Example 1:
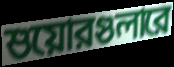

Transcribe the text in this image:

শুয়োরগুলারে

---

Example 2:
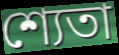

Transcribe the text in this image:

শ্যেতা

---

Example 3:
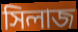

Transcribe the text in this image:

সিলাজ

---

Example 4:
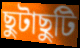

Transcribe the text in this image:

ছুটাছুটি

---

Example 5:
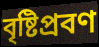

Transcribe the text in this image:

বৃষ্টিপ্রবণ